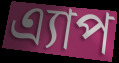
এ্যাপ